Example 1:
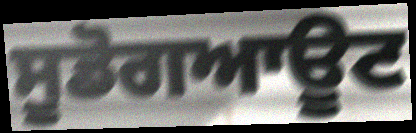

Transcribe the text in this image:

ਸੂਡੋਗਆਊਟ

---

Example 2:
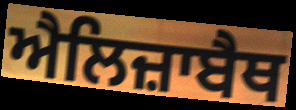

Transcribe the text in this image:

ਐਲਿਜ਼ਾਬੈਥ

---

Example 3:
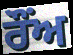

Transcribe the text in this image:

ਰੌਂਅ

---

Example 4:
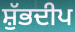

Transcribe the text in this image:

ਸ਼ੁੱਭਦੀਪ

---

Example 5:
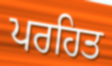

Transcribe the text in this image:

ਪਰਹਿਤ